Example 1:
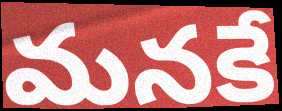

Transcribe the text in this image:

మనకే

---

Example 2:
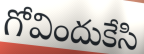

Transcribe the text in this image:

గోవిందుకేసి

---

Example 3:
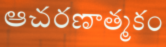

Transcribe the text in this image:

ఆచరణాత్మకం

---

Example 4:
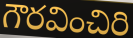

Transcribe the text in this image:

గౌరవించిరి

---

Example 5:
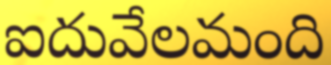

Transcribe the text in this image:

ఐదువేలమంది